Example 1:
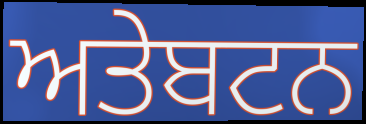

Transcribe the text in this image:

ਅਤੇਬਟਨ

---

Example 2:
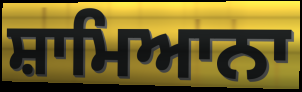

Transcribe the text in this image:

ਸ਼ਾਮਿਆਨਾ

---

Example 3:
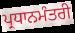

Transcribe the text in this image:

ਪ੍ਰਧਾਨਮੰਤਰੀ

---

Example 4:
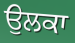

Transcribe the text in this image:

ਉਲਕਾ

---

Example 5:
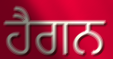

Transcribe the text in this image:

ਹੈਗਨ